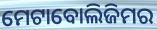
ମେଟାବୋଲିଜିମର